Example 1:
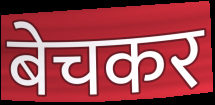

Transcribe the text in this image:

बेचकर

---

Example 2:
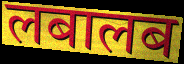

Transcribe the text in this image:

लबालब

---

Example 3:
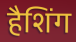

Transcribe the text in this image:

हैशिंग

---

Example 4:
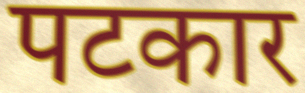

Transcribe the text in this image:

पटकार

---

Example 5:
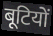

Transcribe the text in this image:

बूटियों